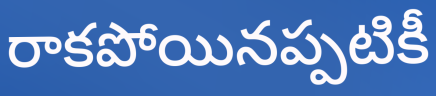
రాకపోయినప్పటికీ